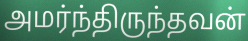
அமர்ந்திருந்தவன்